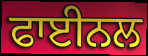
ਫਾਈਨਲ